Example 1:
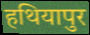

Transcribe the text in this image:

हथियापुर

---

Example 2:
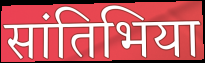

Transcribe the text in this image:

सांतिभिया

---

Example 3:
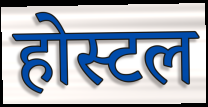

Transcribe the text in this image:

होस्टल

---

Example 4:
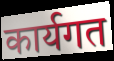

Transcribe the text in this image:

कार्यगत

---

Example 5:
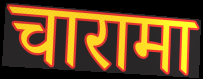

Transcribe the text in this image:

चारामा